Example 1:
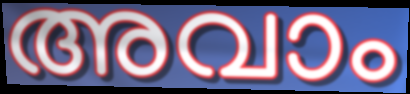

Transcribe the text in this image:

അവാം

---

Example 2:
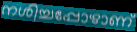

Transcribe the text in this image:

നശിച്ചപ്പോഴാണ്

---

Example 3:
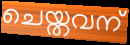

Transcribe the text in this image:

ചെയ്തവന്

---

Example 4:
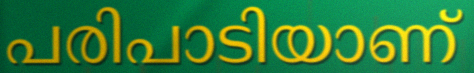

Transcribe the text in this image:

പരിപാടിയാണ്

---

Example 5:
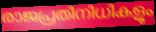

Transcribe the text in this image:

രാജപ്രതിനിധികളും